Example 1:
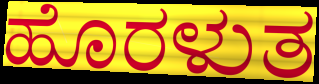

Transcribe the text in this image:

ಹೊರಳುತ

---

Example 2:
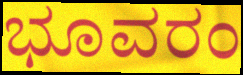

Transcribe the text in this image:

ಭೂವರಂ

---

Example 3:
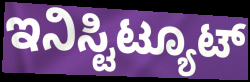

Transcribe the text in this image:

ಇನಿಸ್ಟಿಟ್ಯೂಟ್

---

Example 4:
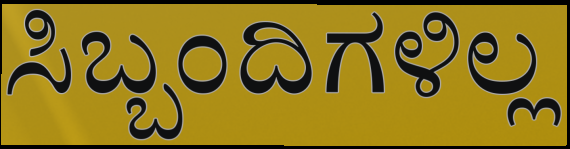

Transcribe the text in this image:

ಸಿಬ್ಬಂದಿಗಳಿಲ್ಲ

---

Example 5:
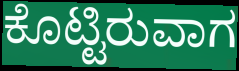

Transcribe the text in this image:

ಕೊಟ್ಟಿರುವಾಗ